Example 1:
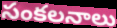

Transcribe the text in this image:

సంకలనాలు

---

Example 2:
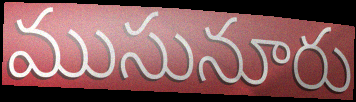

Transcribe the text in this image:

ముసునూరు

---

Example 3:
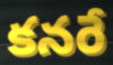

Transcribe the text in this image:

కనరే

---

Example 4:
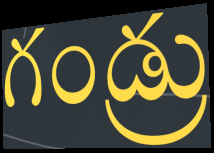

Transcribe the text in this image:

గండ్రు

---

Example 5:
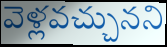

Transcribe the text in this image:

వెళ్లవచ్చునని